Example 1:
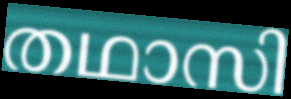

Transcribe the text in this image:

തഥാസി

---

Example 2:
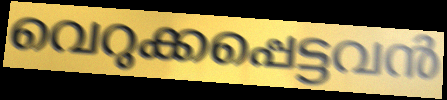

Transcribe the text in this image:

വെറുക്കപ്പെട്ടവൻ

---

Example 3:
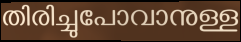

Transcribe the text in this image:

തിരിച്ചുപോവാനുള്ള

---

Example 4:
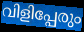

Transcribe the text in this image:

വിളിപ്പേരും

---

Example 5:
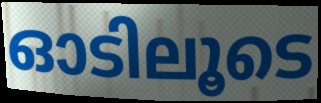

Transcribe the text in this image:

ഓടിലൂടെ